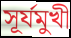
সূর্যমুখী